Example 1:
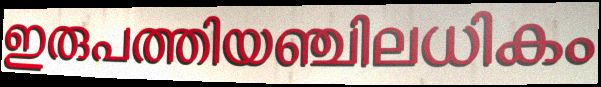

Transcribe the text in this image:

ഇരുപത്തിയഞ്ചിലധികം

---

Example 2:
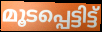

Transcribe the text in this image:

മൂടപ്പെട്ടിട്ട്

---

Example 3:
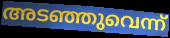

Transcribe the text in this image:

അടഞ്ഞുവെന്ന്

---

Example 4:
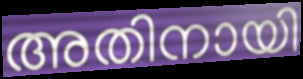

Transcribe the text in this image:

അതിനായി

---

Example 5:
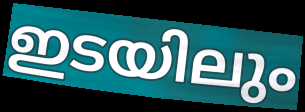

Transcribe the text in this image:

ഇടയിലും